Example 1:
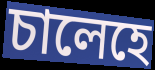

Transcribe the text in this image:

চালেহে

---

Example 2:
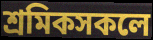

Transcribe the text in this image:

শ্ৰমিকসকলে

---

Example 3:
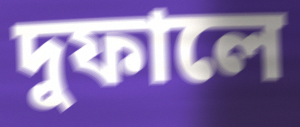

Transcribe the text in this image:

দুফালে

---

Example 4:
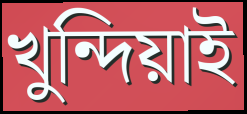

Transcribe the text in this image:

খুন্দিয়াই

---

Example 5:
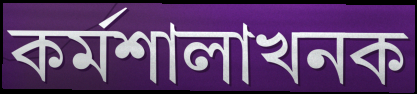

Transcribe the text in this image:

কৰ্মশালাখনক